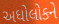
અધોલોકને